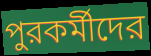
পুরকর্মীদের